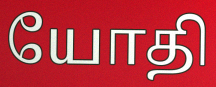
யோதி